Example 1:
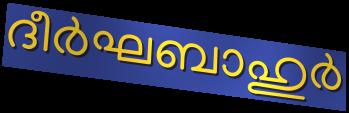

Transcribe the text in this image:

ദീർഘബാഹുർ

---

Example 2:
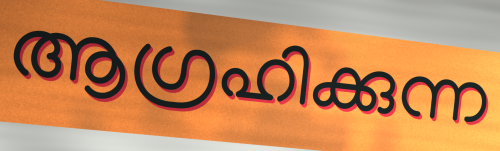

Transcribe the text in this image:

ആഗ്രഹിക്കുന്ന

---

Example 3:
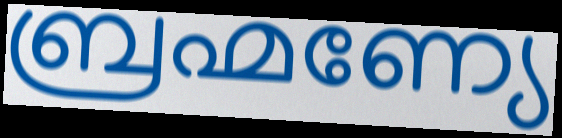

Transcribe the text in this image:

ബ്രഹ്മണ്യേ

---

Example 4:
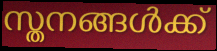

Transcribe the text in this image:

സ്തനങ്ങൾക്ക്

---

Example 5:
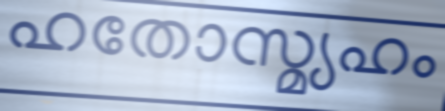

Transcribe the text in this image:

ഹതോസ്മ്യഹം